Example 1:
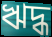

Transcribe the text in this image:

ঋদ্ধ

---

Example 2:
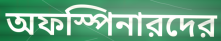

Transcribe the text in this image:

অফস্পিনারদের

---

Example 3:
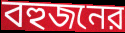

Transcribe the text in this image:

বহুজনের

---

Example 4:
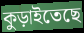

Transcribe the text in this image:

কুড়াইতেছে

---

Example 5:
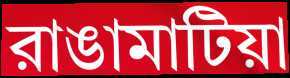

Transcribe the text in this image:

রাঙামাটিয়া